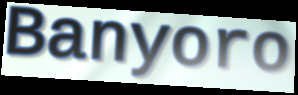
Banyoro